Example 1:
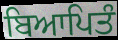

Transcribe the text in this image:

ਬਿਆਪਿਤੰ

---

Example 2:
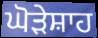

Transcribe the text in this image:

ਘੋੜੇਸ਼ਾਹ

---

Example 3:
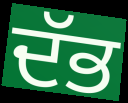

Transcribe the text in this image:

ਦੱਭ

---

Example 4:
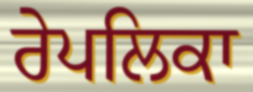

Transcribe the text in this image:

ਰੇਪਲਿਕਾ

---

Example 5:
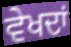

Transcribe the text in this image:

ਵੇਖਦਾਂ